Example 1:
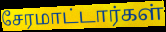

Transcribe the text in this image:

சேரமாட்டார்கள்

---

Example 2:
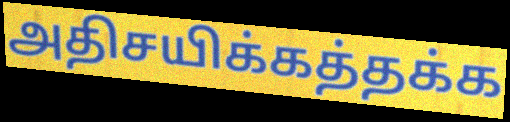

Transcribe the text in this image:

அதிசயிக்கத்தக்க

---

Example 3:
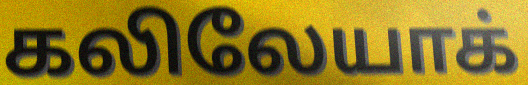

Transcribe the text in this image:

கலிலேயாக்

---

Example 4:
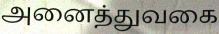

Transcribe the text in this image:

அனைத்துவகை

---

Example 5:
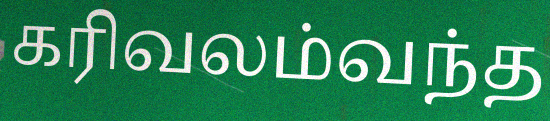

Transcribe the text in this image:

கரிவலம்வந்த